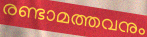
രണ്ടാമത്തവനും